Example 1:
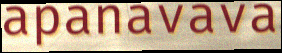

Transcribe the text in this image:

apanavava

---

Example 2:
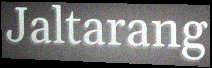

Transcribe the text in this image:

Jaltarang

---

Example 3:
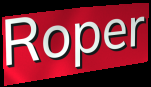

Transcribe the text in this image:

Roper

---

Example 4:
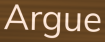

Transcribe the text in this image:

Argue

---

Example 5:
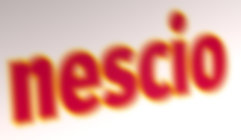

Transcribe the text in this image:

nescio